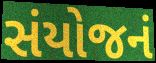
સંયોજનં